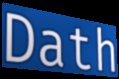
Dath